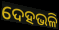
ଦେହଭଳି